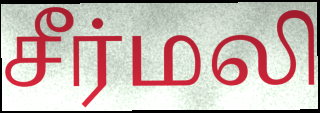
சீர்மலி